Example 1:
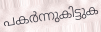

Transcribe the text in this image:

പകർന്നുകിട്ടുക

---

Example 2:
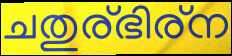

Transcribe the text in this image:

ചതുര്ഭിര്ന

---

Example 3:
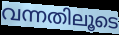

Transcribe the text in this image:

വന്നതിലൂടെ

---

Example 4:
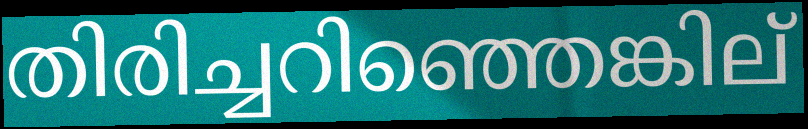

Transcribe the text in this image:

തിരിച്ചറിഞ്ഞെങ്കില്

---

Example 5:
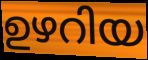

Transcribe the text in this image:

ഉഴറിയ